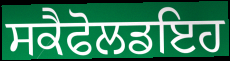
ਸਕੈਫੋਲਡਇਹ